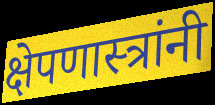
क्षेपणास्त्रांनी